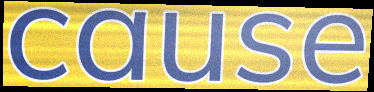
cause